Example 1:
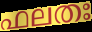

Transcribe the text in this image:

ഫലതഃ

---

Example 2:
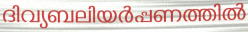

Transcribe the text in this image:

ദിവ്യബലിയർപ്പണത്തിൽ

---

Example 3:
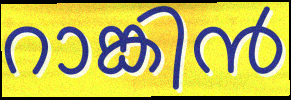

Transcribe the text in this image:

റാങ്കിൻ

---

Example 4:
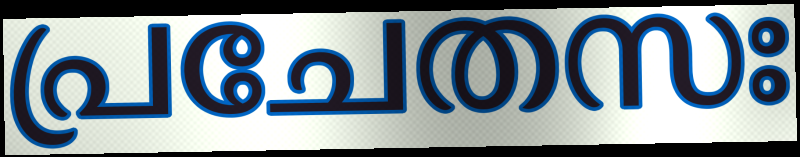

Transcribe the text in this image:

പ്രചേതസഃ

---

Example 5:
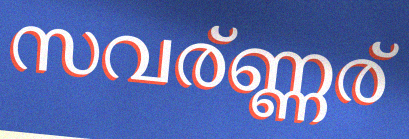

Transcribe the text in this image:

സവര്ണ്ണര്